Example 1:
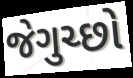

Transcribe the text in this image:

જેગુચ્છો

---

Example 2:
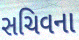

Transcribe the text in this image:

સચિવના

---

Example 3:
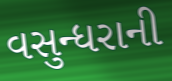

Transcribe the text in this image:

વસુન્ધરાની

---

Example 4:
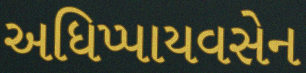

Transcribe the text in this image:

અધિપ્પાયવસેન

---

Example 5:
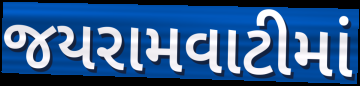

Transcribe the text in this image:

જયરામવાટીમાં